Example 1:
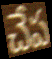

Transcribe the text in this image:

చేప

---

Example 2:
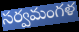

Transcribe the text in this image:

సర్వమంగళ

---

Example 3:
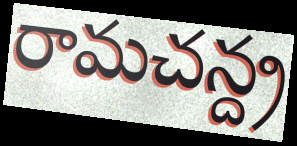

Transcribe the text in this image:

రామచన్ద్ర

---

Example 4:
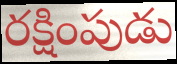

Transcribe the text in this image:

రక్షింపుడు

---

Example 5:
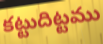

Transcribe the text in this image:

కట్టుదిట్టము